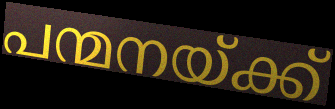
പന്മനയ്ക്ക്